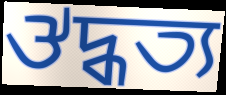
ঔদ্ধত্য